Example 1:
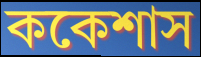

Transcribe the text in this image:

ককেশাস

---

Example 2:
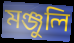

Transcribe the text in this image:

মঞ্জুলি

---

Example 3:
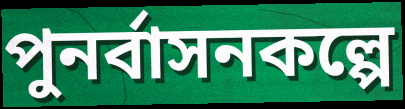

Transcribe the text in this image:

পুনর্বাসনকল্পে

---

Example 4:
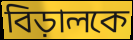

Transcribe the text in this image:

বিড়ালকে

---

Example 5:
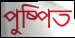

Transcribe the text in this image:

পুষ্পিত